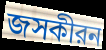
জসকীরন